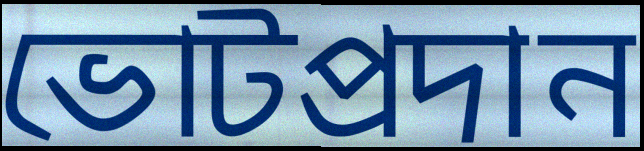
ভোটপ্রদান